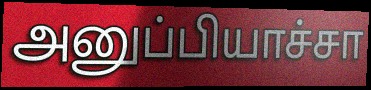
அனுப்பியாச்சா